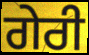
ਗੇਰੀ